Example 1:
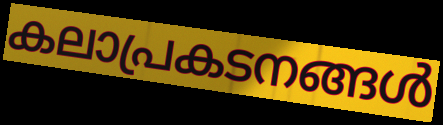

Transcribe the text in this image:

കലാപ്രകടനങ്ങൾ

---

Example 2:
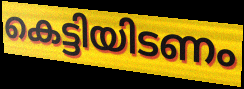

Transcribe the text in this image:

കെട്ടിയിടണം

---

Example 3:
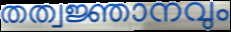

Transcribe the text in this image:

തത്വജ്ഞാനവും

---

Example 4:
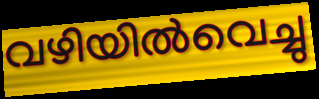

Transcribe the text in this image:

വഴിയിൽവെച്ചു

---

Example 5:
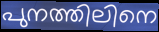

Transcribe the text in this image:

പുനത്തിലിനെ